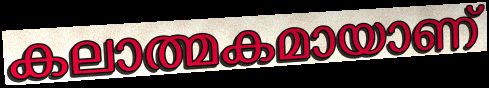
കലാത്മകമായാണ്